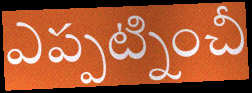
ఎప్పట్నించీ